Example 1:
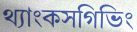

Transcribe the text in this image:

থ্যাংকসগিভিং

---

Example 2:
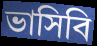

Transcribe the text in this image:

ভাসিবি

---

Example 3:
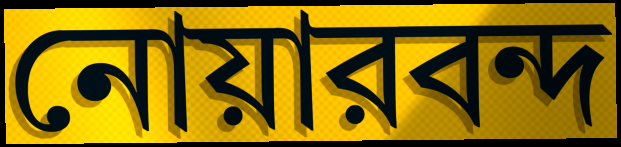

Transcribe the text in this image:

নোয়ারবন্দ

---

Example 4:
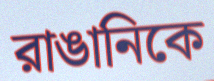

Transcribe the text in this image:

রাঙানিকে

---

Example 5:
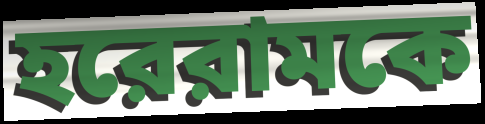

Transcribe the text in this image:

হরেরামকে